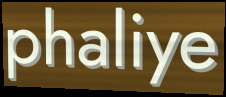
phaliye